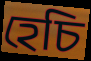
হেচি